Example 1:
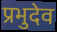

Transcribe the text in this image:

प्रभुदेव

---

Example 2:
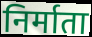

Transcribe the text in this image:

निर्माता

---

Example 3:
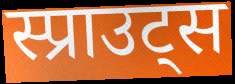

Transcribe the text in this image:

स्प्राउट्स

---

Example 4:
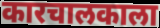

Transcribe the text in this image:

कारचालकाला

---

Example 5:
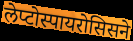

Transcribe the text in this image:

लेप्टोस्पायरोसिसने